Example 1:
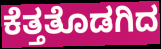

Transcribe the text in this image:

ಕೆತ್ತತೊಡಗಿದ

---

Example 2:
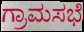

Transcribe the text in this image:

ಗ್ರಾಮಸಭೆ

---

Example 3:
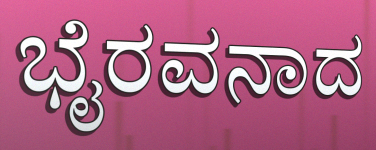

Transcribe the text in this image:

ಭೈರವನಾದ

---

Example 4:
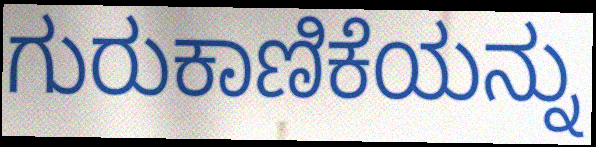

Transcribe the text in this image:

ಗುರುಕಾಣಿಕೆಯನ್ನು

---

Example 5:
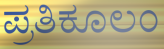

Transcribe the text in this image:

ಪ್ರತಿಕೂಲಂ